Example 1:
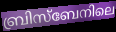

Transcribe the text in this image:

ബ്രിസ്ബേനിലെ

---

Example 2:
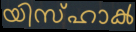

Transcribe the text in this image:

യിസ്ഹാൿ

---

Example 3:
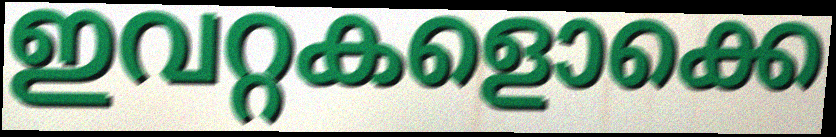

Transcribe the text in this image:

ഇവറ്റകളൊക്കെ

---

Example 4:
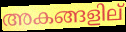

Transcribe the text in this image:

അകങ്ങളില്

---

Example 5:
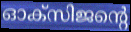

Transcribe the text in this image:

ഓക്സിജന്റെ